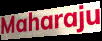
Maharaju